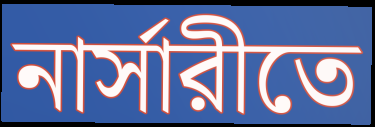
নার্সারীতে